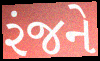
રંજને